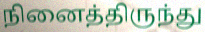
நினைத்திருந்து